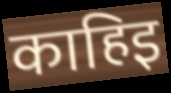
काहिइ